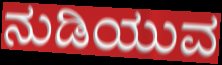
ನುಡಿಯುವ